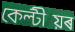
কেল্টীয়ৰ